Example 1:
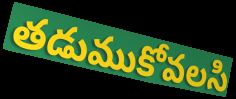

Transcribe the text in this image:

తడుముకోవలసి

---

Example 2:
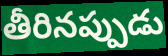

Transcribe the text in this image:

తీరినప్పుడు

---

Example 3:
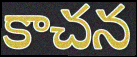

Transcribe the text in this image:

కాచన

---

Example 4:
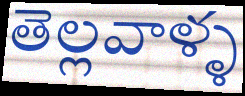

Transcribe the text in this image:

తెల్లవాళ్ళ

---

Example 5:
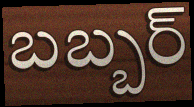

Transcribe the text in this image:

బబ్బర్